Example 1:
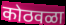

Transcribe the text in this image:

कोठवळा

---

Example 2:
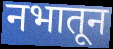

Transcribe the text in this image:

नभातून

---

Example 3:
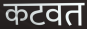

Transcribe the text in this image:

कटवत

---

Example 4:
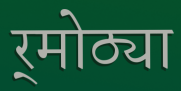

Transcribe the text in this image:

र्मोठ्या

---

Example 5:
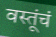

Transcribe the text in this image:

वस्तूंचं